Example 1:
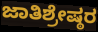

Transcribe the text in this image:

ಜಾತಿಶ್ರೇಷ್ಠರ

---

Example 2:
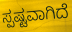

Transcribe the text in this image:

ಸ್ಪಷ್ಟವಾಗಿದೆ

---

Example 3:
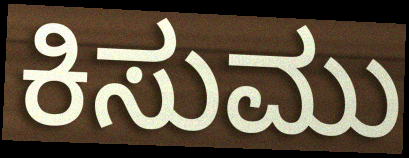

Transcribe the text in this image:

ಕಿಸುಮು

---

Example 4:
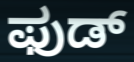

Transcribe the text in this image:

ಫುಡ್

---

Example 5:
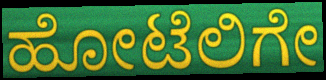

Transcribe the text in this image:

ಹೋಟೆಲಿಗೇ